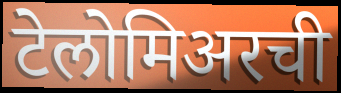
टेलोमिअरची